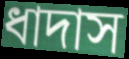
ধাদাস